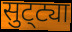
सुट्‌ट्या